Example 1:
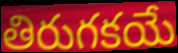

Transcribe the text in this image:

తిరుగకయే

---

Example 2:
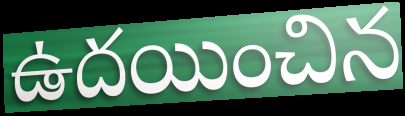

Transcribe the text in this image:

ఉదయించిన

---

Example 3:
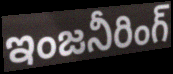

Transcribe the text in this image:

ఇంజనీరింగ్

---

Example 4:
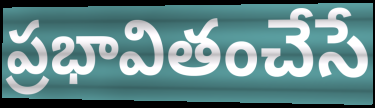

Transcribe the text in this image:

ప్రభావితంచేసే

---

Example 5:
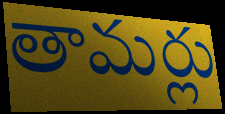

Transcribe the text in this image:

తామర్లు